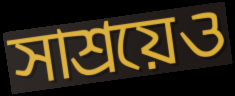
সাশ্রয়েও